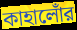
কাহালোঁর